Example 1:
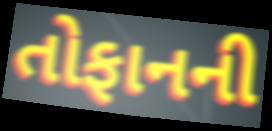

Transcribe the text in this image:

તોફાનની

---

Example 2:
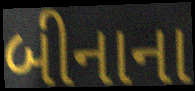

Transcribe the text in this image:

બીનાના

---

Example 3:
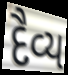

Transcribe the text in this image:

દૈવ્ય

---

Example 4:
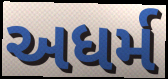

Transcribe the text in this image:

અધર્મ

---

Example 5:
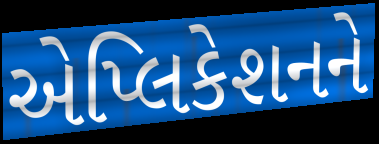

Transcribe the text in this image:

એપ્લિકેશનને